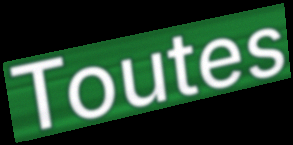
Toutes